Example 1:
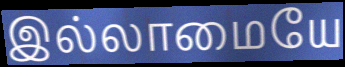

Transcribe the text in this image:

இல்லாமையே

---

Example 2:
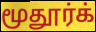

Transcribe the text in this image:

மூதூர்க்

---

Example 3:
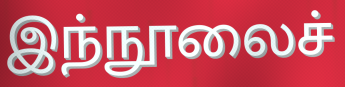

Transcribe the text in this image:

இந்நூலைச்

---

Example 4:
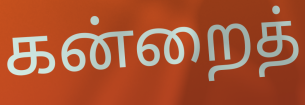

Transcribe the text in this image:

கன்றைத்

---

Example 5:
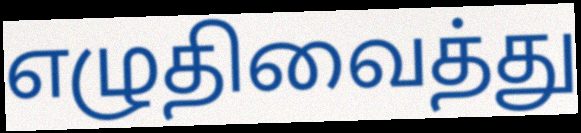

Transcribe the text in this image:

எழுதிவைத்து